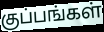
குப்பங்கள்